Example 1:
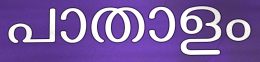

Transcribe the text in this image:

പാതാളം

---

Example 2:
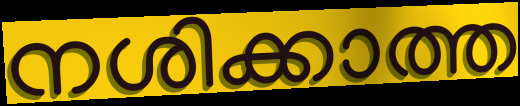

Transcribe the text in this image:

നശിക്കാത്ത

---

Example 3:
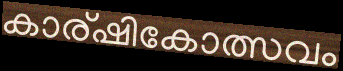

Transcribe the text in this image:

കാര്ഷികോത്സവം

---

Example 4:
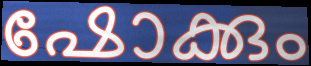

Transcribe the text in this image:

ഷോക്കും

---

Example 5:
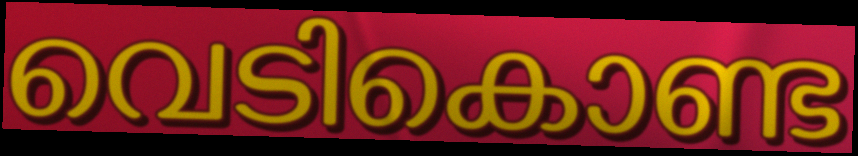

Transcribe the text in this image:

വെടികൊണ്ട